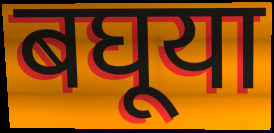
बघूया